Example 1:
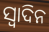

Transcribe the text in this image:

ସ୍ବାଦିନ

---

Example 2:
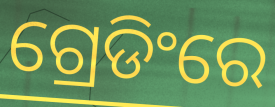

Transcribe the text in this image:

ଗ୍ରେଡିଂରେ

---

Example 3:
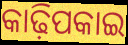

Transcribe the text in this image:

କାଢ଼ିପକାଇ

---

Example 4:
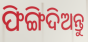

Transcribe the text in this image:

ଫିଙ୍ଗିଦିଅନ୍ତୁ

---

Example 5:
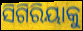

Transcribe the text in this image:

ସିଗିରିୟାକୁ